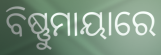
ବିଷ୍ଣୁମାୟାରେ